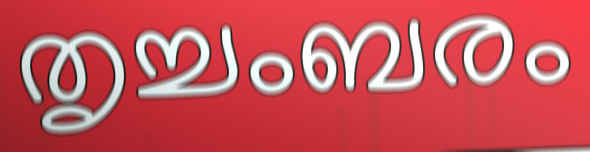
തൃച്ചംബരം